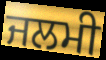
ਜਲਮੀ